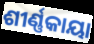
ଶୀର୍ଣ୍ଣକାୟା